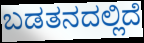
ಬಡತನದಲ್ಲಿದೆ